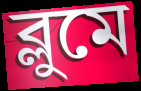
ব্লুমে